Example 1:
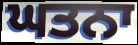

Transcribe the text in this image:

ਘਤਨਾ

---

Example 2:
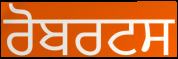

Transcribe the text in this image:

ਰੋਬਰਟਸ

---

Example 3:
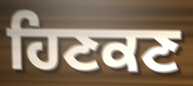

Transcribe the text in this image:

ਹਿਣਕਣ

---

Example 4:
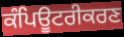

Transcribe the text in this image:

ਕੰਪਿਊਟਰੀਕਰਣ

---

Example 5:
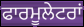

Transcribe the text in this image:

ਫਾਰਮੂਲੇਟਰਾਂ